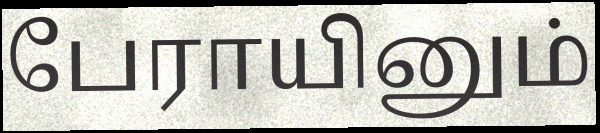
பேராயினும்